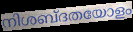
നിശബ്ദതയോളം